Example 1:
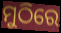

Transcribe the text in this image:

ମୁଠିରେ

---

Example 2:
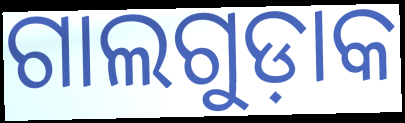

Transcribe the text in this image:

ଗାଲଗୁଡ଼ାକ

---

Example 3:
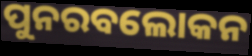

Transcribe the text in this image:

ପୁନରବଲୋକନ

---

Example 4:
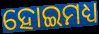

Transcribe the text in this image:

ହୋଇମଧ୍ୟ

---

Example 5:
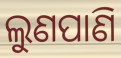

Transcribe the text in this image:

ଲୁଣପାଣି